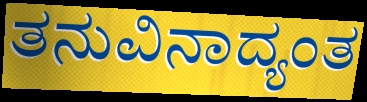
ತನುವಿನಾದ್ಯಂತ